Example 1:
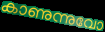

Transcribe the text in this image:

കാണുന്നുവോ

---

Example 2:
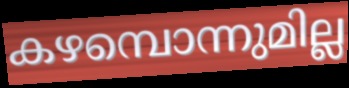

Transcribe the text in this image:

കഴമ്പൊന്നുമില്ല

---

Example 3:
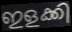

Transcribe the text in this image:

ഇളക്കി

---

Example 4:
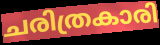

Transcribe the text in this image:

ചരിത്രകാരി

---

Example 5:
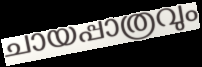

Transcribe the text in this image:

ചായപ്പാത്രവും